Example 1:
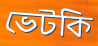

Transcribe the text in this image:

ভেটকি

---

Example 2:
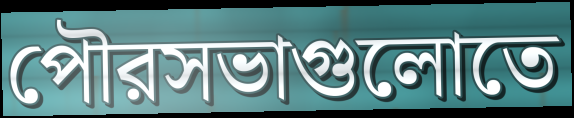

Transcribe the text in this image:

পৌরসভাগুলোতে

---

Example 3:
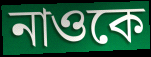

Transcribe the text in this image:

নাওকে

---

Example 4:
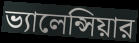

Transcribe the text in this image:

ভ্যালেন্সিয়ার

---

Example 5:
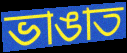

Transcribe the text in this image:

ভাঙাত